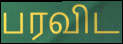
பரவிட